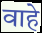
वाहे